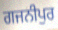
ਗਜਨੀਪੁਰ